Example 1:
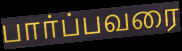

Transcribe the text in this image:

பார்ப்பவரை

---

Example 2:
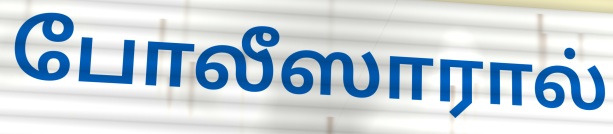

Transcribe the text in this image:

போலீஸாரால்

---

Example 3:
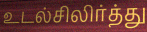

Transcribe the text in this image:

உடல்சிலிர்த்து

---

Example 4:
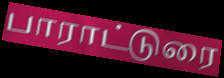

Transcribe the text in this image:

பாராட்டுரை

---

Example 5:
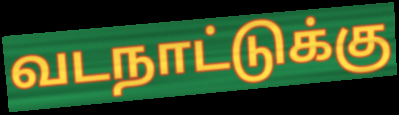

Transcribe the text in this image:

வடநாட்டுக்கு